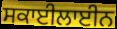
ਸਕਾਈਲਾਈਨ